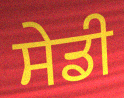
ਸੇਡੀ